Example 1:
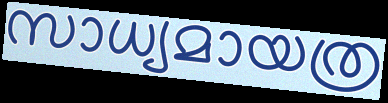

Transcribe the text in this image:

സാധ്യമായത്ര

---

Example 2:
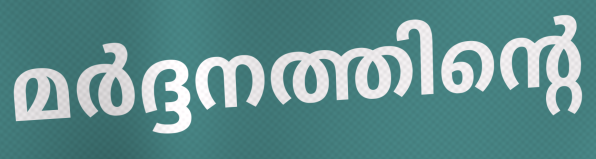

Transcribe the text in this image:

മർദ്ദനത്തിന്റെ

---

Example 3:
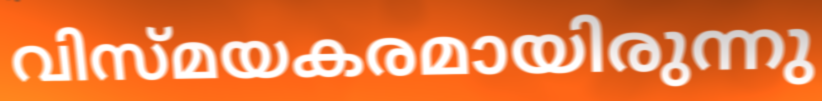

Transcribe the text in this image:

വിസ്മയകരമായിരുന്നു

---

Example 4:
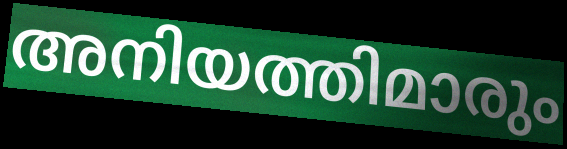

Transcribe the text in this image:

അനിയത്തിമാരും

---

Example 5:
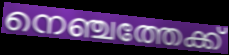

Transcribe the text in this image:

നെഞ്ചത്തേക്ക്